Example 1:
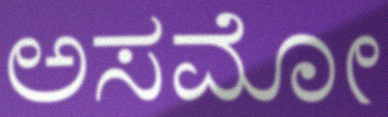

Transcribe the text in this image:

ಅಸಮೋ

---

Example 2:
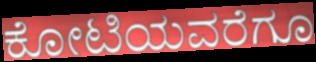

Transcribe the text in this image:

ಕೋಟಿಯವರೆಗೂ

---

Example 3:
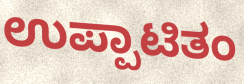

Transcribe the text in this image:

ಉಪ್ಪಾಟಿತಂ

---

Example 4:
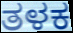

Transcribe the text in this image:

ತಳಕ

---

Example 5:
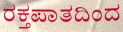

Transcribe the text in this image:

ರಕ್ತಪಾತದಿಂದ